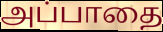
அப்பாதை